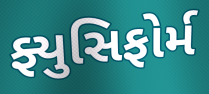
ફ્યુસિફોર્મ